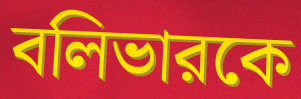
বলিভারকে